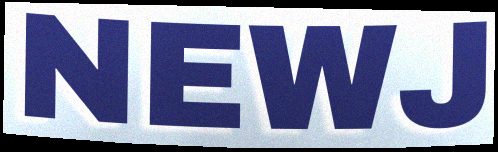
NEWJ